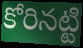
కోరినట్టి